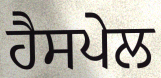
ਹੈਸਪੇਲ